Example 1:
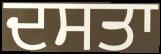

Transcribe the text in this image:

ਦਸਤਾ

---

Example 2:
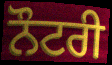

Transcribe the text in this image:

ਨੌਟਰੀ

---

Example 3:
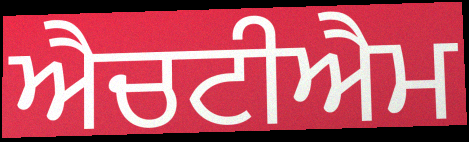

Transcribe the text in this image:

ਐਚਟੀਐਮ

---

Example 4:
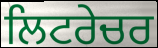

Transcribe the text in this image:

ਲਿਟਰੇਚਰ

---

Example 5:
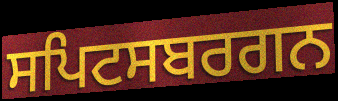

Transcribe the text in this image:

ਸਪਿਟਸਬਰਗਨ